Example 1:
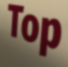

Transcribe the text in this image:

Top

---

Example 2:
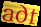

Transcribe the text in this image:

adt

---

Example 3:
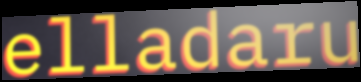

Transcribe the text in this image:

elladaru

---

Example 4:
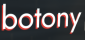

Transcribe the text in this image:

botony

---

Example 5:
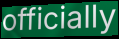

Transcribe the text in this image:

officially